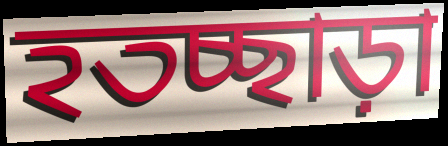
হতচ্ছাড়া